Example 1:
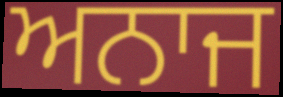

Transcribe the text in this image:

ਅਨਾਜ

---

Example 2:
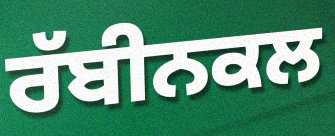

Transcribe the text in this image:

ਰੱਬੀਨਕਲ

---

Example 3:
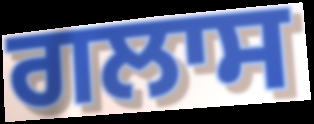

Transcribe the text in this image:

ਗਲਾਸ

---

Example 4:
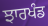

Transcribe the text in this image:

ਝਾਰਖੰਡ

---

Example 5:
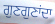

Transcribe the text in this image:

ਗੁਣਗੁਣਾਂਦਾ